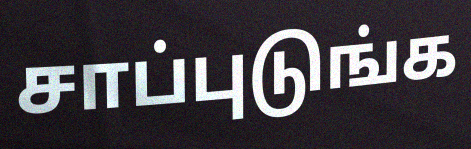
சாப்புடுங்க